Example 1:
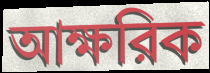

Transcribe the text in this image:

আক্ষরিক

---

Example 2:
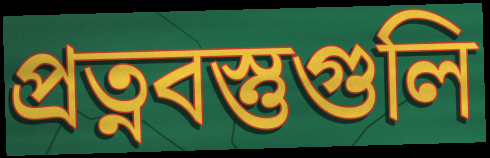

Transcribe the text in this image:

প্রত্নবস্তুগুলি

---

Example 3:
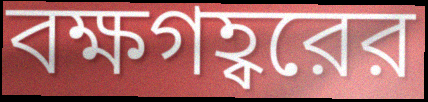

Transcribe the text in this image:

বক্ষগহ্বরের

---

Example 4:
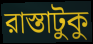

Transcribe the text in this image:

রাস্তাটুকু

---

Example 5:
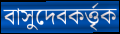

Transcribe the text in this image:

বাসুদেবকর্ত্তৃক